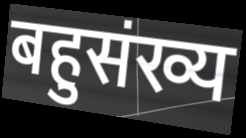
बहुसंख्य